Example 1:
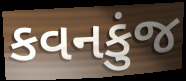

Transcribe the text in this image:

કવનકુંજ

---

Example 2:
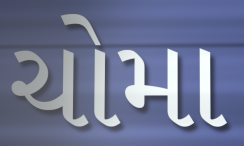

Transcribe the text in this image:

ચોમા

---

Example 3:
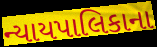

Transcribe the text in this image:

ન્યાયપાલિકાના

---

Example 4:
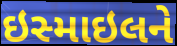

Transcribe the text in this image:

ઇસ્માઇલને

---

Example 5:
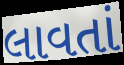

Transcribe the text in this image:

લાવતાં